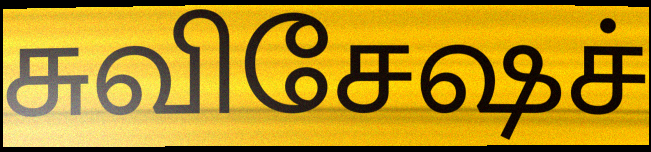
சுவிசேஷச்